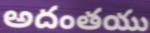
అదంతయు